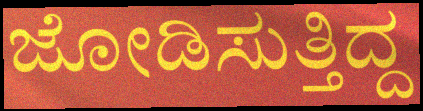
ಜೋಡಿಸುತ್ತಿದ್ದ